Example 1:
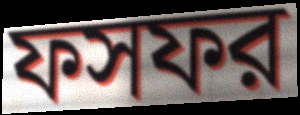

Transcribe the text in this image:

ফসফর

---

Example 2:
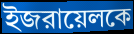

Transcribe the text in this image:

ইজরায়েলকে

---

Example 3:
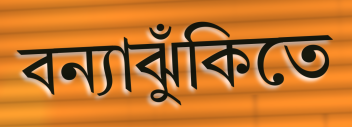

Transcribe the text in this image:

বন্যাঝুঁকিতে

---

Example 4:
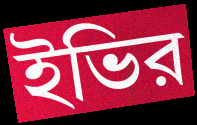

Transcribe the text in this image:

ইভির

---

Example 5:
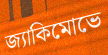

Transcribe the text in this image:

জ্যাকিমোভে